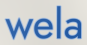
wela